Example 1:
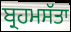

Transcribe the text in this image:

ਬ੍ਰਹਮਸੱਤਾ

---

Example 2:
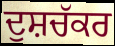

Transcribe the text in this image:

ਦੁਸ਼ਚੱਕਰ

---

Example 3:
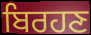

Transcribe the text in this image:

ਬਿਰਹਣ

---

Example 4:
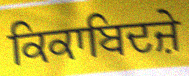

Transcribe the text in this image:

ਕਿਕਾਬਿਦਜ਼ੇ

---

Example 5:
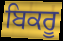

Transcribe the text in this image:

ਬਿਕਰੂ